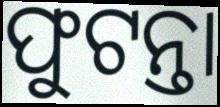
ଫୁଟନ୍ତା